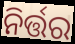
ନିର୍ତ୍ତର